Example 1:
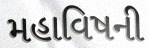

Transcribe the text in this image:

મહાવિષની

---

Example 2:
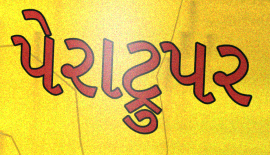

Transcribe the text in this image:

પેરાટ્રુપર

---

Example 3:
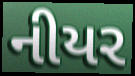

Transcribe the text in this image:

નીયર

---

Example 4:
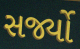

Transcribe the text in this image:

સર્જ્યો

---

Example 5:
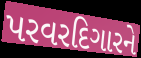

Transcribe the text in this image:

પરવરદિગારને